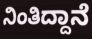
ನಿಂತಿದ್ದಾನೆ